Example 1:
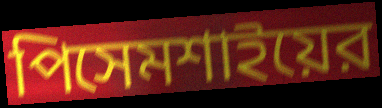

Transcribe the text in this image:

পিসেমশাইয়ের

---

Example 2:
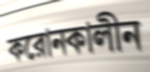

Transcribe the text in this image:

করোনকালীন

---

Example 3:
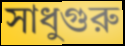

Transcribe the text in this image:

সাধুগুরু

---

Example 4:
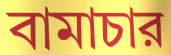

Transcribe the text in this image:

বামাচার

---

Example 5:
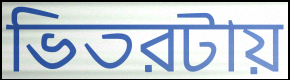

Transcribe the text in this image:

ভিতরটায়